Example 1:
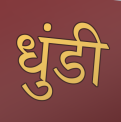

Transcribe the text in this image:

धुंडी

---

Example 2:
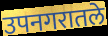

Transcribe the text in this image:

उपनगरातले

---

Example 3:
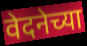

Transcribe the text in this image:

वेदनेच्या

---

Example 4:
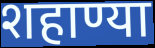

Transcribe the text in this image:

शहाण्या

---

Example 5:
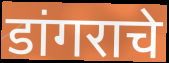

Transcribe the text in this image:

डांगराचे